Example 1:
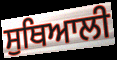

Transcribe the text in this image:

ਸੁਥਿਆਲੀ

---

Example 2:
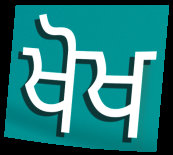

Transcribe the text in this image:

ਖੋਖ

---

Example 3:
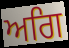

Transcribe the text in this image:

ਅਗਿ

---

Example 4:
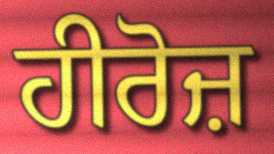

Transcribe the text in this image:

ਹੀਰੋਜ਼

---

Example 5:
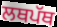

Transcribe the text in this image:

ਲਥਪੱਥ